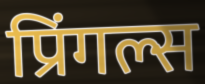
प्रिंगल्स